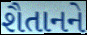
શૈતાનને